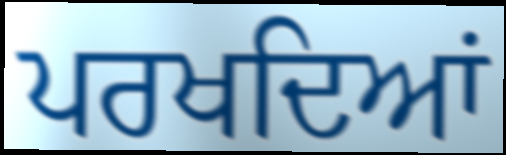
ਪਰਖਦਿਆਂ